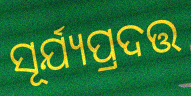
ସୂର୍ଯ୍ୟପ୍ରଦତ୍ତ